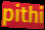
pithi